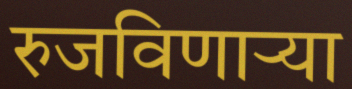
रुजविणाऱ्या